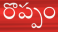
రొప్పం